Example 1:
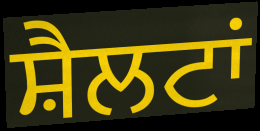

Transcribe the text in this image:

ਸ਼ੈਲਟਾਂ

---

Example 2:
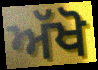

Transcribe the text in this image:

ਅੱਖੋ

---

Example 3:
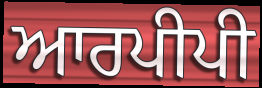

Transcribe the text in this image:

ਆਰਪੀਪੀ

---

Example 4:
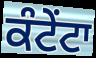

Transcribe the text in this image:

ਕੰਟੇਂਟਾ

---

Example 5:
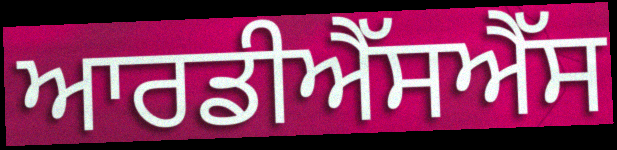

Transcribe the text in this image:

ਆਰਡੀਐੱਸਐੱਸ